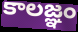
కాలజ్ఞం